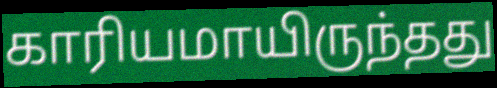
காரியமாயிருந்தது